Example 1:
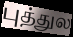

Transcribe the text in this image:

புத்துல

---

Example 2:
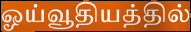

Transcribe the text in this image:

ஓய்வூதியத்தில்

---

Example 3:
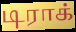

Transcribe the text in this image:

டிராக்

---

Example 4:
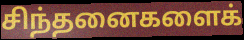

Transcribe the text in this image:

சிந்தனைகளைக்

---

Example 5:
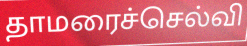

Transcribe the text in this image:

தாமரைச்செல்வி